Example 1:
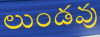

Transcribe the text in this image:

లుండవు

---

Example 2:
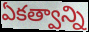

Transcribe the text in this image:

ఏకత్వాన్ని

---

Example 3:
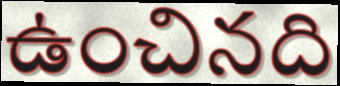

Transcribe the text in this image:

ఉంచినది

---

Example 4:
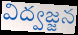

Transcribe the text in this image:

విద్వజ్జన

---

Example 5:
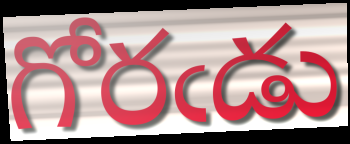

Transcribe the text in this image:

గోరఁడు